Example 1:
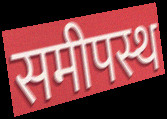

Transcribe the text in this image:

समीपस्थ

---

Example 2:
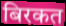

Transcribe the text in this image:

बिरकत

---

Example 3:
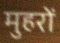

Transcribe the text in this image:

मुहरों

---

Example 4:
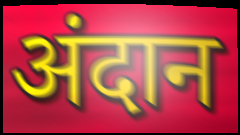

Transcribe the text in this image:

अंदान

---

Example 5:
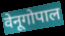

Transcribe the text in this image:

वेनूगोपाल